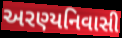
અરણ્યનિવાસી